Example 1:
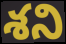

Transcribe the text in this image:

శని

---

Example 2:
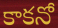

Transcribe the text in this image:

కాకనో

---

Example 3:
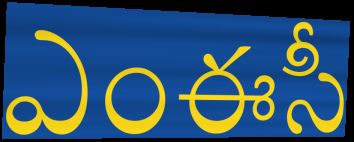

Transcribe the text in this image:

ఎంఈసీ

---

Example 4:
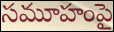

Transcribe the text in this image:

సమూహంపై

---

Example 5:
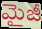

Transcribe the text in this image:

మైజీ